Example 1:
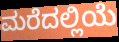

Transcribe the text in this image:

ಮರೆದಲ್ಲಿಯೆ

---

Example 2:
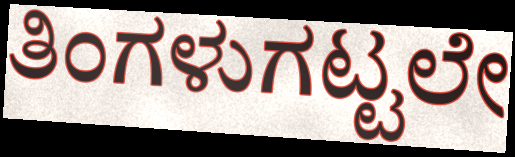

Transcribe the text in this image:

ತಿಂಗಳುಗಟ್ಟಲೇ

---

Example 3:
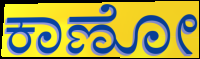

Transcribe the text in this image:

ಕಾಣೋ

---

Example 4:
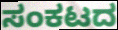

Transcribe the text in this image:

ಸಂಕಟದ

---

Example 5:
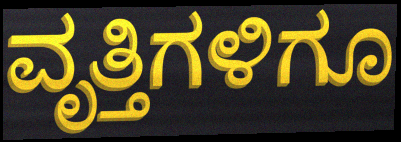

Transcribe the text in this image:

ವೃತ್ತಿಗಳಿಗೂ